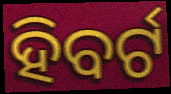
ହିବର୍ଟ